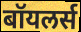
बॉयलर्स